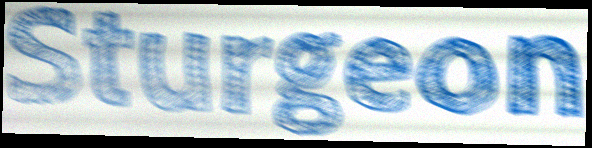
Sturgeon